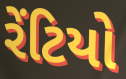
રેંટિયો